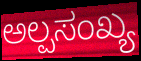
ಅಲ್ಪಸಂಖ್ಯ